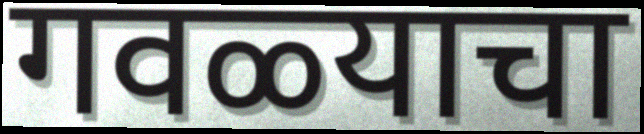
गवळ्याचा